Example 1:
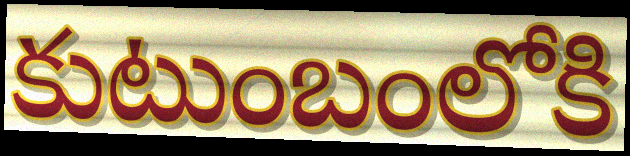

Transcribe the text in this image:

కుటుంబంలోకి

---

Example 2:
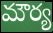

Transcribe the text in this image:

మౌర్య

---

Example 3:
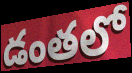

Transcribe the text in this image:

డంతలో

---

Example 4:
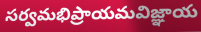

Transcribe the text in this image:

సర్వమభిప్రాయమవిజ్ఞాయ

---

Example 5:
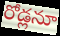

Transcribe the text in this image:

రోడ్లనూ